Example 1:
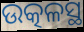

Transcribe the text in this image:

ଉତ୍କଳସ୍ଥ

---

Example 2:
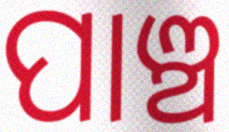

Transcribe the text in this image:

ପାଞ୍ଚ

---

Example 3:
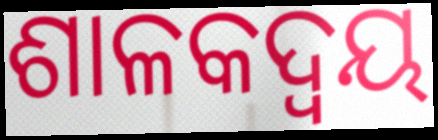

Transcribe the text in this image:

ଶାଳକଦ୍ୱୟ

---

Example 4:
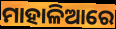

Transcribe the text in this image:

ମାହାଳିଆରେ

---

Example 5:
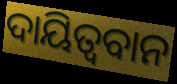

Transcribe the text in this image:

ଦାୟିତ୍ଵବାନ